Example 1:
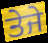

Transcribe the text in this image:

ਤੇਜੇ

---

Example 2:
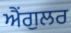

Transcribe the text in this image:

ਐਂਗੁਲਰ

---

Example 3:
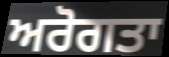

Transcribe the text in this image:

ਅਰੋਗਤਾ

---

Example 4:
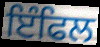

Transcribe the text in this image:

ਇੰਫਿਲ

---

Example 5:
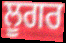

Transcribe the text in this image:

ਲੂਗਰ